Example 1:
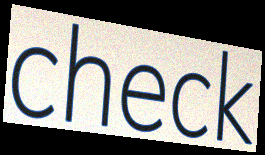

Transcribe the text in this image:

check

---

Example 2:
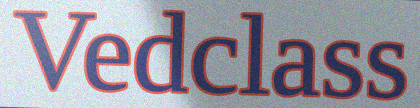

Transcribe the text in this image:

Vedclass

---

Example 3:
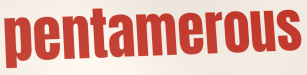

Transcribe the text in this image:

pentamerous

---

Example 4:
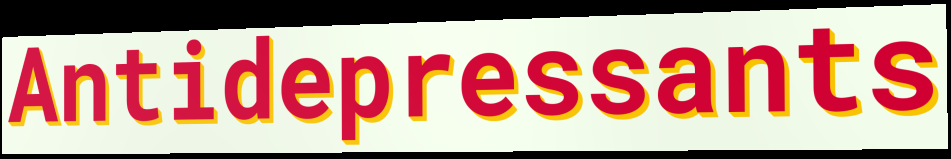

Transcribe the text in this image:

Antidepressants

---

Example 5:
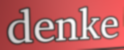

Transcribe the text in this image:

denke